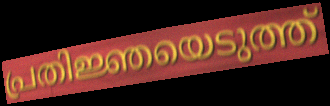
പ്രതിജ്ഞയെടുത്ത്